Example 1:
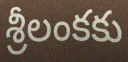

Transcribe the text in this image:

శ్రీలంకకు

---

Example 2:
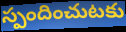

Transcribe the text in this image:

స్పందించుటకు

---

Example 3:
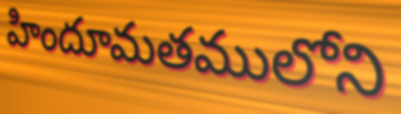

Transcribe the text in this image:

హిందూమతములోని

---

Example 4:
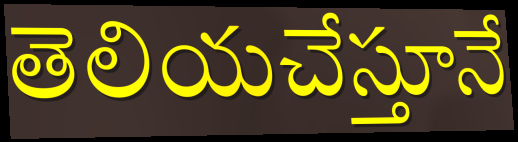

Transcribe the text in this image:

తెలియచేస్తూనే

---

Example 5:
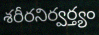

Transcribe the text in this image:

శరీరనిర్వర్త్యం